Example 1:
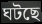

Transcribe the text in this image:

ঘটছে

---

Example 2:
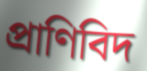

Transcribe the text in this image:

প্রাণিবিদ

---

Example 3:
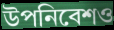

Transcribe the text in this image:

উপনিবেশও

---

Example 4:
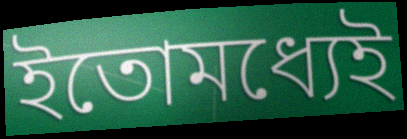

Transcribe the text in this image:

ইতোমধ্যেই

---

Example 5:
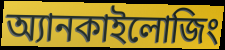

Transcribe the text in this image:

অ্যানকাইলোজিং